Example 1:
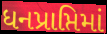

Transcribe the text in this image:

ધનપ્રાપ્તિમાં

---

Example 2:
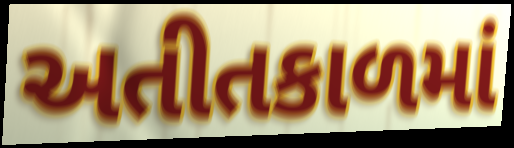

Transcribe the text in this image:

અતીતકાળમાં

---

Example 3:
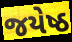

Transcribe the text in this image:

જયેષ્ઠ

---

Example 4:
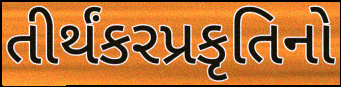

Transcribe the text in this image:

તીર્થંકરપ્રકૃતિનો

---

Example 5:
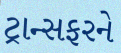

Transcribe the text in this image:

ટ્રાન્સફરને